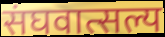
संघवात्सल्य